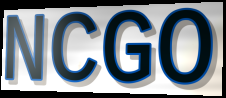
NCGO